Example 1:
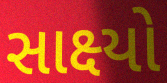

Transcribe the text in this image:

સાક્ષ્યો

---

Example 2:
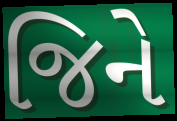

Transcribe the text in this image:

જિને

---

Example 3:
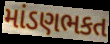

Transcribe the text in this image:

માંડણભકત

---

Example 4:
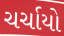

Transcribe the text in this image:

ચર્ચાયો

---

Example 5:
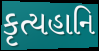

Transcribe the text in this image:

કૃત્યહાનિ